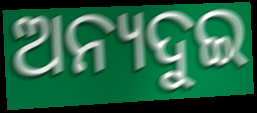
ଅନ୍ୟଦୁଇ